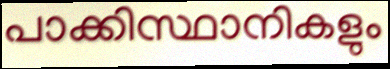
പാക്കിസ്ഥാനികളും